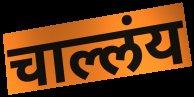
चाल्लंय